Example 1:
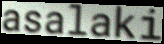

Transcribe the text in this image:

asalaki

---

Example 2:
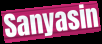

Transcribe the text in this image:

Sanyasin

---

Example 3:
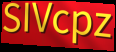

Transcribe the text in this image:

SIVcpz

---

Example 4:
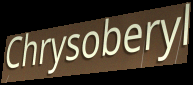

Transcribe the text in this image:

Chrysoberyl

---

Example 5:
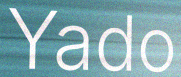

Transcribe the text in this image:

Yado